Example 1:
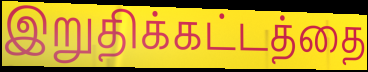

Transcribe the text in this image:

இறுதிக்கட்டத்தை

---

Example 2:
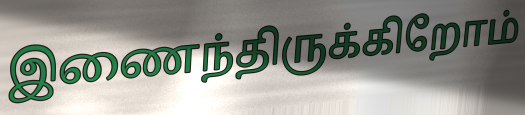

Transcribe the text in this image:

இணைந்திருக்கிறோம்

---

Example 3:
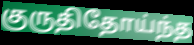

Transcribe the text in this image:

குருதிதோய்ந்த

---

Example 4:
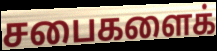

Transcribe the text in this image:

சபைகளைக்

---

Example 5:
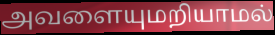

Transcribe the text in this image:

அவளையுமறியாமல்